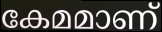
കേമമാണ്